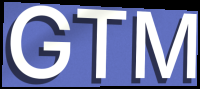
GTM